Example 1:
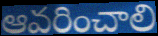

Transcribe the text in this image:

ఆవరించాలి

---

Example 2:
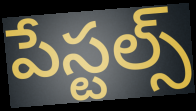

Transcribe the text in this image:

పేస్టల్స్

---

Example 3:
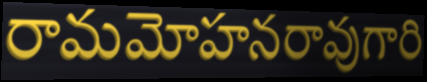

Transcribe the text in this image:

రామమోహనరావుగారి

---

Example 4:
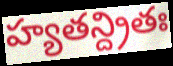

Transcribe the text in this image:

హ్యతన్ద్రితః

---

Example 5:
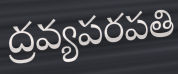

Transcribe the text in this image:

ద్రవ్యపరపతి